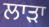
ਲਾੜਾ